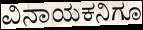
ವಿನಾಯಕನಿಗೂ